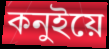
কনুইয়ে